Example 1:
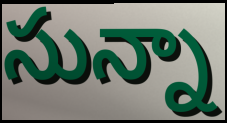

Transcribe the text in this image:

సున్నా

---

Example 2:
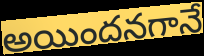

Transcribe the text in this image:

అయిందనగానే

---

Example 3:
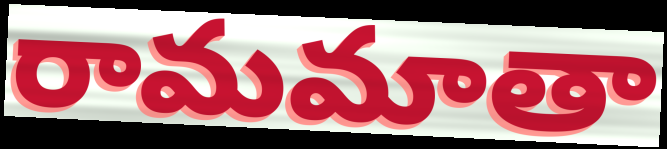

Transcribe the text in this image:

రామమాతా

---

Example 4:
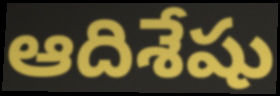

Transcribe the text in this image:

ఆదిశేషు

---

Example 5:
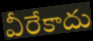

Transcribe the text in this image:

వీరేకాదు